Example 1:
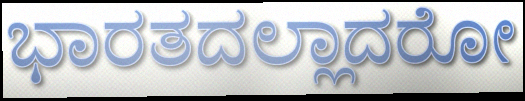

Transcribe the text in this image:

ಭಾರತದಲ್ಲಾದರೋ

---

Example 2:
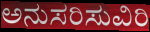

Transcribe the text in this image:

ಅನುಸರಿಸುವಿರಿ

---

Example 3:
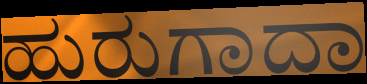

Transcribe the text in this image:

ಹುರುಗಾದಾ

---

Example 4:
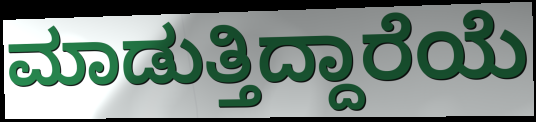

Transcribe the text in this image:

ಮಾಡುತ್ತಿದ್ದಾರೆಯೆ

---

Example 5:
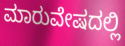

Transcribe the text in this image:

ಮಾರುವೇಷದಲ್ಲಿ